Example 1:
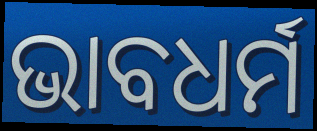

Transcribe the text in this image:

ଭାବଧର୍ମ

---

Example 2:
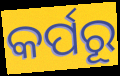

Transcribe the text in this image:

କର୍ପରୂ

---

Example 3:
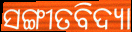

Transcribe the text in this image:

ସଙ୍ଗୀତବିଦ୍ୟା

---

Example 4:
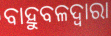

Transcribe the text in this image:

ବାହୁବଳଦ୍ୱାରା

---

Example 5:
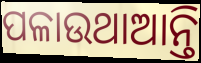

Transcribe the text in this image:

ପଳାଉଥାଆନ୍ତି